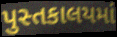
પુસ્તકાલયમાં